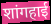
शांगहाई